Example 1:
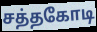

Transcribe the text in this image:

சத்தகோடி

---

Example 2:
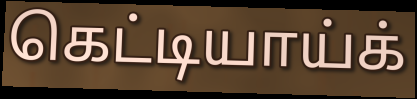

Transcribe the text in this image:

கெட்டியாய்க்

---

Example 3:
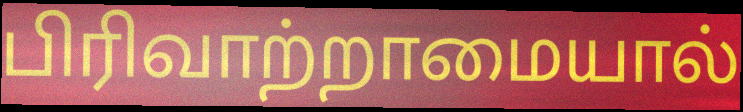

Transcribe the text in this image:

பிரிவாற்றாமையால்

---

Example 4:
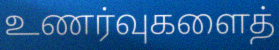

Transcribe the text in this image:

உணர்வுகளைத்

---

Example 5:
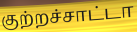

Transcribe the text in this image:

குற்றச்சாட்டா